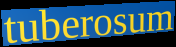
tuberosum